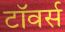
टॉवर्स